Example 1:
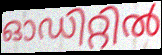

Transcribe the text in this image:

ഓഡിറ്റിൽ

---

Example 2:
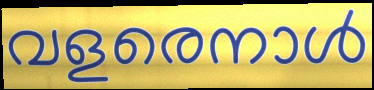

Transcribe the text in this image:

വളരെനാൾ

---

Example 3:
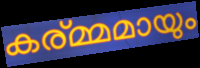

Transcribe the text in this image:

കര്മ്മമായും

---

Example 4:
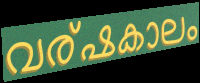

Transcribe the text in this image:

വര്ഷകാലം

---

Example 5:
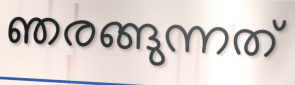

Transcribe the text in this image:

ഞരങ്ങുന്നത്